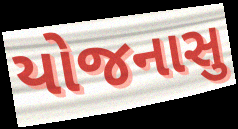
યોજનાસુ